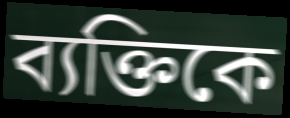
ব্যক্তিকে